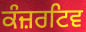
ਕੰਜ਼ਰਟਿਵ